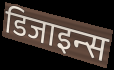
डिजाइन्स